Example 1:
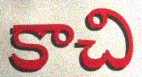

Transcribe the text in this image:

కాచి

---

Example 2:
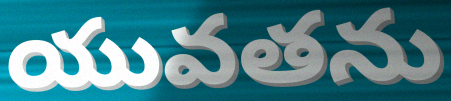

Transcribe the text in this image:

యువతను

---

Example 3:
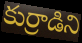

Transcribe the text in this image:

కుర్రాడిని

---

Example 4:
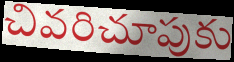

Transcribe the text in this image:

చివరిచూపుకు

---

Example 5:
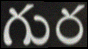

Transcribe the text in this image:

గుర